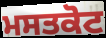
ਮਸਤਕੋਟ